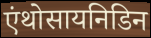
एंथोसायनिडिन